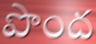
పొంద